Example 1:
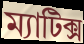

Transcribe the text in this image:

ম্যাটিক্স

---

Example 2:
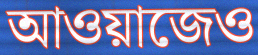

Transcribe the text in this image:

আওয়াজেও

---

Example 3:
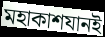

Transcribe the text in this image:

মহাকাশযানই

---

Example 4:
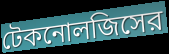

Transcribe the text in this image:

টেকনোলজিসের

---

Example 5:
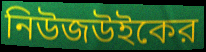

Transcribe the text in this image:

নিউজউইকের